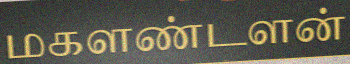
மகளண்டளன்